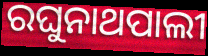
ରଘୁନାଥପାଲୀ